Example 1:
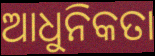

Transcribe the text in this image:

ଆଧୁନିକତା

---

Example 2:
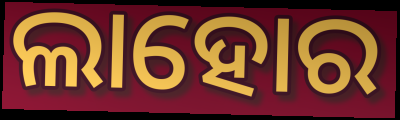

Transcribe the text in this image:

ଲାହୋର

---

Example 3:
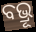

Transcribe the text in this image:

ବଭ୍ରୂ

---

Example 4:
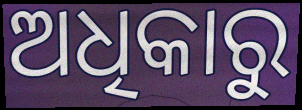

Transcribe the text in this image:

ଅଧିକାରୁ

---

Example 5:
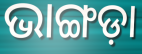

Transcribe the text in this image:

ଭାଙ୍ଗଡ଼ା